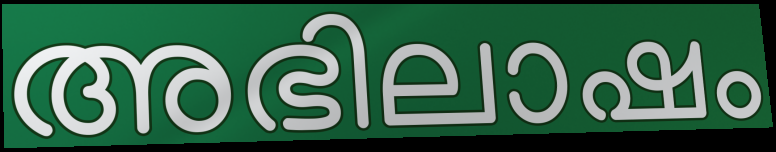
അഭിലാഷം